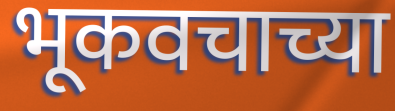
भूकवचाच्या